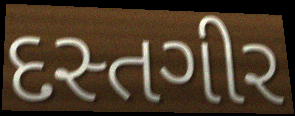
દસ્તગીર